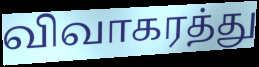
விவாகரத்து